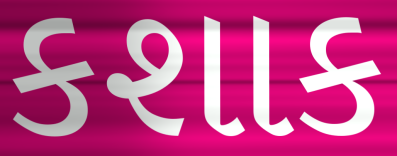
કશાક